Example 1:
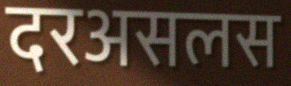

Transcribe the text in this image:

दरअसलस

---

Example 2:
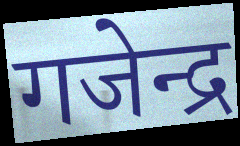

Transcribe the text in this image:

गजेन्द्र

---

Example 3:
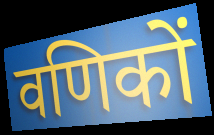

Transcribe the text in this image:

वणिकों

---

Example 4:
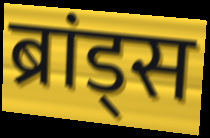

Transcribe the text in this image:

ब्रांड्स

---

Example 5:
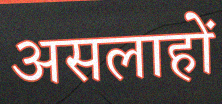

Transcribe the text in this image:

असलाहों